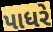
પાધરે